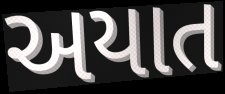
અયાત